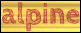
alpine